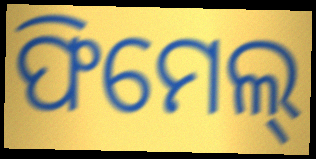
ଫିମେଲ୍